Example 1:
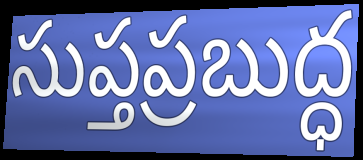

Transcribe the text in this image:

సుప్తప్రబుద్ధ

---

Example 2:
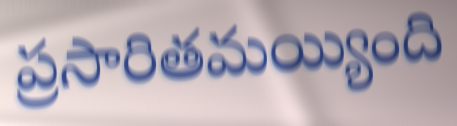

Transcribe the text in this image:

ప్రసారితమయ్యింది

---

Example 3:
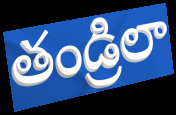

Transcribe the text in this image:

తండ్రిలా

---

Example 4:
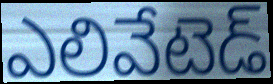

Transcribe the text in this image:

ఎలివేటెడ్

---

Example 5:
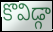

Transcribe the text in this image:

కొవిడ్గా